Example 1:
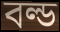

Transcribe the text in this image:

বল্ড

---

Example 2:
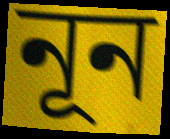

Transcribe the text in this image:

নূন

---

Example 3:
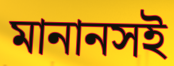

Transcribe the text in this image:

মানানসই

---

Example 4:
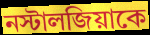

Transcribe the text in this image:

নস্টালজিয়াকে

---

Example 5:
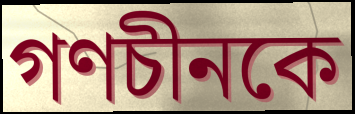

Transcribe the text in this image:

গণচীনকে